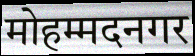
मोहम्मदनगर